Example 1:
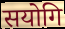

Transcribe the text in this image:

सयोगि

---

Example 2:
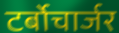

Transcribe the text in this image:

टर्बोचार्जर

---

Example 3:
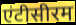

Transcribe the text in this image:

एंटीसीरम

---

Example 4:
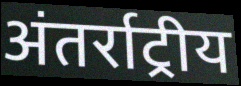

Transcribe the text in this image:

अंतर्राट्रीय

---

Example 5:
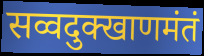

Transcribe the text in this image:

सव्वदुक्खाणमंतं